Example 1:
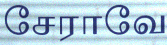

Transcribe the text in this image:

சேராவே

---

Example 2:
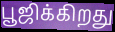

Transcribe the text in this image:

பூஜிக்கிறது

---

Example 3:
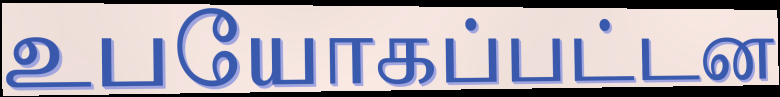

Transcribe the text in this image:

உபயோகப்பட்டன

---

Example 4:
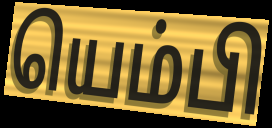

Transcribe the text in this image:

யெம்பி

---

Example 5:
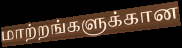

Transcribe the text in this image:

மாற்றங்களுக்கான